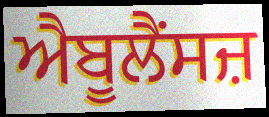
ਐਬੂਲੈਂਸਜ਼